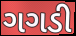
ગગડી